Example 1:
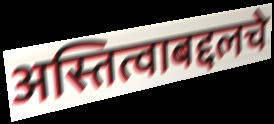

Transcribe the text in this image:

अस्तित्वाबद्दलचे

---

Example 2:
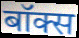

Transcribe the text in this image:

बॉक्‍स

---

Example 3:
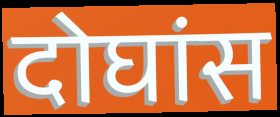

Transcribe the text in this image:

दोघांस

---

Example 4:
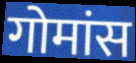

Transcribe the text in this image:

गोमांस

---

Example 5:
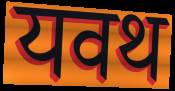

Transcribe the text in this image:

यवथ